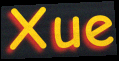
Xue